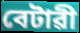
বেটাৱী